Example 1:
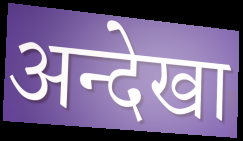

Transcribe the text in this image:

अन्देखा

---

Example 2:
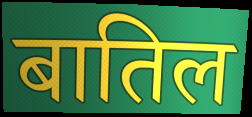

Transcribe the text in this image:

बातिल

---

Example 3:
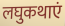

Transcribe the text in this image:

लघुकथाएं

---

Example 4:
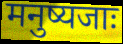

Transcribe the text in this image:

मनुष्यजाः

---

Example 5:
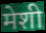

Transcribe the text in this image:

मेशी